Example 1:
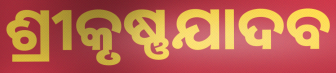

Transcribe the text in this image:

ଶ୍ରୀକୃଷ୍ଣଯାଦବ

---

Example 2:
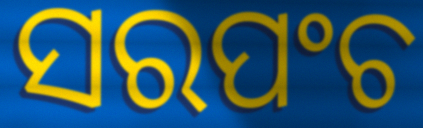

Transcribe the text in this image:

ସରପଂଚ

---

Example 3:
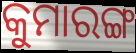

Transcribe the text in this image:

କୁମାରଙ୍ଗ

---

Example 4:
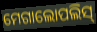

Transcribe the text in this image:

ମେଗାଲୋପଲିସ୍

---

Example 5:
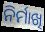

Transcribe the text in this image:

ନିର୍ମାଖି